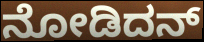
ನೋಡಿದನ್